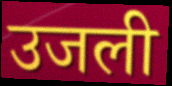
उजली